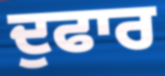
ਦੁਫਾਰ